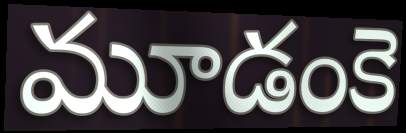
మూడంకె